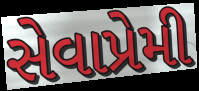
સેવાપ્રેમી